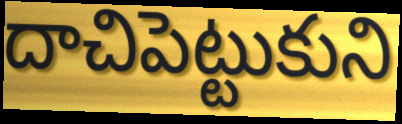
దాచిపెట్టుకుని